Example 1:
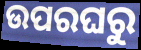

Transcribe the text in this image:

ଉପରଘରୁ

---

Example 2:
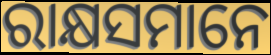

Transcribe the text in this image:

ରାକ୍ଷସମାନେ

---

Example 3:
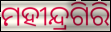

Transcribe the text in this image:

ମହୀନ୍ଦ୍ରଗିରି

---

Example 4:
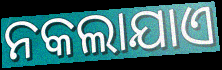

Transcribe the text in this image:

ନକଲାଯାଏ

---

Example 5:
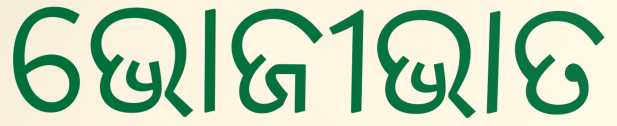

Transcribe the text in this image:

ଭୋଜୀଭାତ